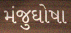
મંજુઘોષા